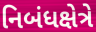
નિબંધક્ષેત્રે